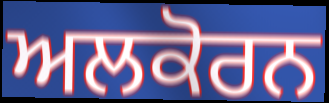
ਅਲਕੋਰਨ